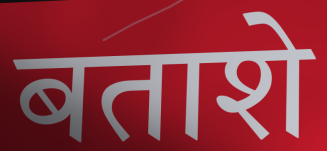
बताशे